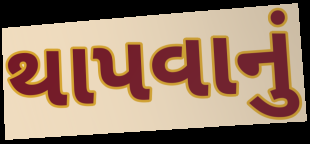
થાપવાનું